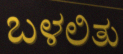
ಬಳಲಿತು